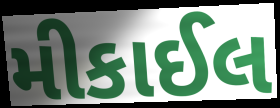
મીકાઈલ